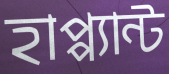
হাপ্প্যান্ট